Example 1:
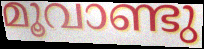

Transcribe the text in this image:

മൂവാണ്ടു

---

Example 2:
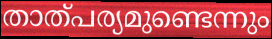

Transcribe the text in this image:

താത്പര്യമുണ്ടെന്നും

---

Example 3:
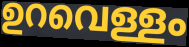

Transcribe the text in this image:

ഉറവെള്ളം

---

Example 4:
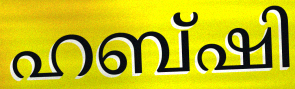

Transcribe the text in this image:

ഹബ്ഷി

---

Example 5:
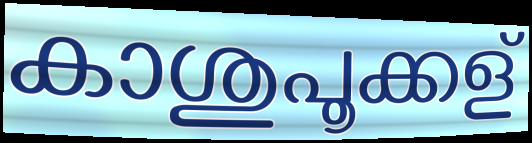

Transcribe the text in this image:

കാശുപൂക്കള്